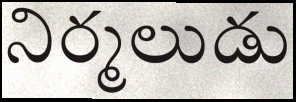
నిర్మలుడు